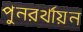
পুনরর্থায়ন